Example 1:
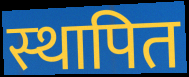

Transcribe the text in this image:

स्‍थापित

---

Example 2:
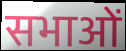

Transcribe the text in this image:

सभाओं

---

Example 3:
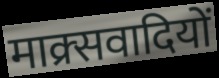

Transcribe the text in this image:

माक्र्सवादियों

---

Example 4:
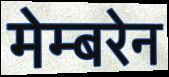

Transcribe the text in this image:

मेम्बरेन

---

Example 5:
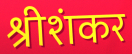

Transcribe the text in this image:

श्रीशंकर